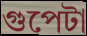
গুপেটা